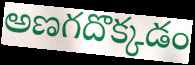
అణగదొక్కడం